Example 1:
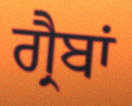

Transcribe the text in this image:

ਗ੍ਰੈਬਾਂ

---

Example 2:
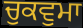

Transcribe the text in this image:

ਚੁਕਵੁਮਾ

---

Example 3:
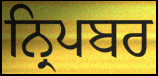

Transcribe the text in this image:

ਨ੍ਰਿਪਬਰ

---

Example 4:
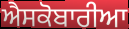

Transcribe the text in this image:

ਐਸਕੋਬਾਰੀਆ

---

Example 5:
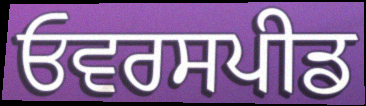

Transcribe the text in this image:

ਓਵਰਸਪੀਡ